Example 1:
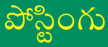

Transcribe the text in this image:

పోస్టింగు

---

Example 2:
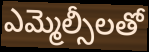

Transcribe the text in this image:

ఎమ్మెల్సీలతో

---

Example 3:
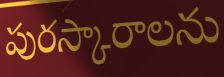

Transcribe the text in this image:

పురస్కారాలను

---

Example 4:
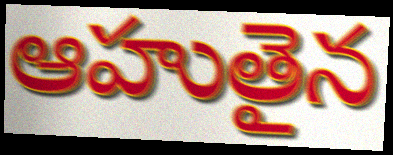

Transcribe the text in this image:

ఆహుతైన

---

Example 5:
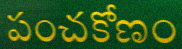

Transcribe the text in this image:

పంచకోణం